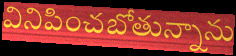
వినిపించబోతున్నాను